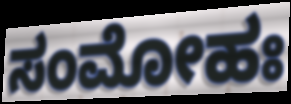
ಸಂಮೋಹಃ